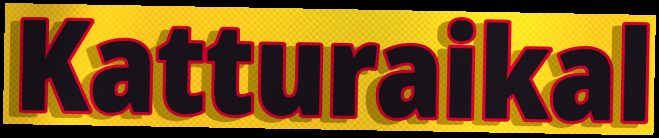
Katturaikal